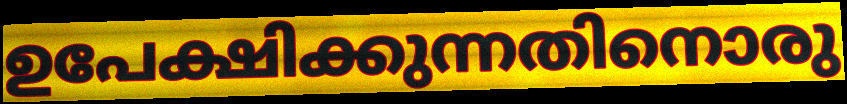
ഉപേക്ഷിക്കുന്നതിനൊരു